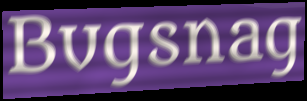
Bugsnag